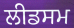
ਲੀਡਸਮ